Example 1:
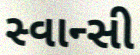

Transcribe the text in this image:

સ્વાન્સી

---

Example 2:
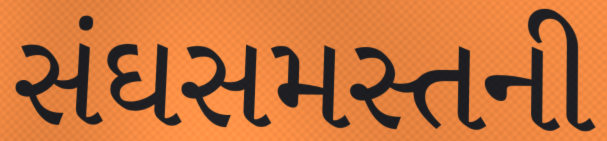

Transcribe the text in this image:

સંઘસમસ્તની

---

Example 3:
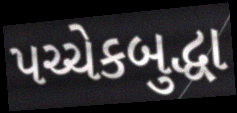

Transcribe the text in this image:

પચ્ચેકબુદ્ધા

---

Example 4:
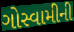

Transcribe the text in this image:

ગોસ્વામીની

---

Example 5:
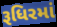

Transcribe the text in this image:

રૂધિરમાં